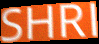
SHRI